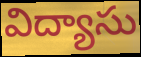
విద్యాసు